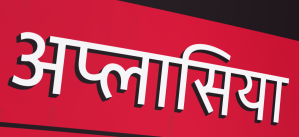
अप्लासिया